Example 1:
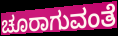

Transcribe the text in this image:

ಚೂರಾಗುವಂತೆ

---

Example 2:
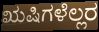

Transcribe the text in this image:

ಋಷಿಗಳೆಲ್ಲರ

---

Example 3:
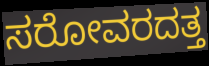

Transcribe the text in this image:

ಸರೋವರದತ್ತ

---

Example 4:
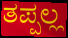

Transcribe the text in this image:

ತಪ್ಪಲ್ಲ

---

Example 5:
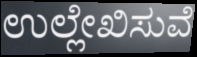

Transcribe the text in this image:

ಉಲ್ಲೇಖಿಸುವೆ